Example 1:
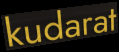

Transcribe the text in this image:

kudarat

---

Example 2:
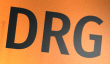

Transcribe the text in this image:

DRG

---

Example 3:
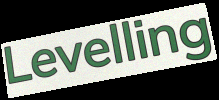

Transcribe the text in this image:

Levelling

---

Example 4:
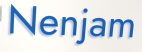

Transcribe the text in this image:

Nenjam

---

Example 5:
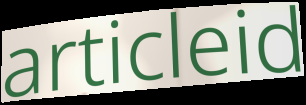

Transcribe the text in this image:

articleid